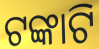
ଟଙ୍କାଟି